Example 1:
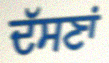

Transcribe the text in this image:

ਦੱਸਣਾਂ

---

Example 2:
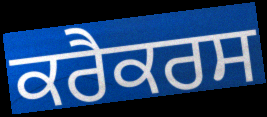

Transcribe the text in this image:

ਕਰੈਕਰਸ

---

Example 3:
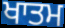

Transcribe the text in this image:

ਖਾਤਮ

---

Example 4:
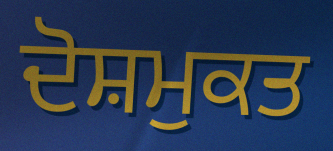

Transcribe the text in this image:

ਦੋਸ਼ਮੁਕਤ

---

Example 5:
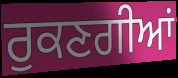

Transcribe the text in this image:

ਰੁਕਣਗੀਆਂ